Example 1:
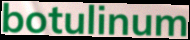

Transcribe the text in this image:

botulinum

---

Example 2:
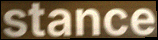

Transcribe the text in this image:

stance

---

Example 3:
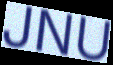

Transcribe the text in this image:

JNU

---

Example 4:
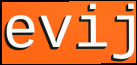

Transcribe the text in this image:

evij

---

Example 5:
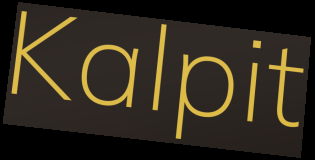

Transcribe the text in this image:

Kalpit